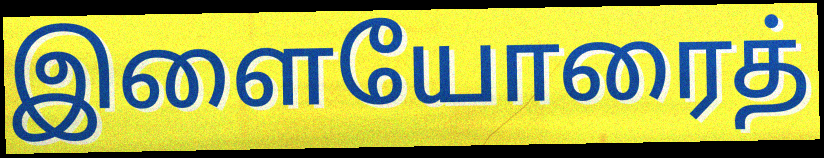
இளையோரைத்